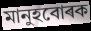
মানুহবোৰক